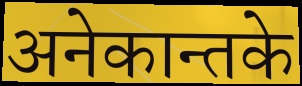
अनेकान्तके